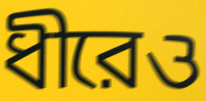
ধীরেও